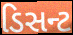
ડિસન્ટ